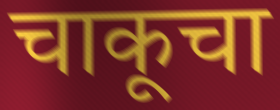
चाकूचा